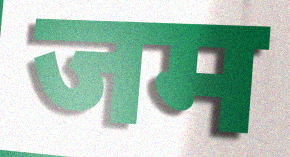
जम